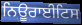
ਨਿਊਰਾਈਟਿਸ